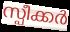
സ്പീക്കർ